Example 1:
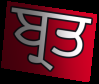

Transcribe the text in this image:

ਬ੍ਰਤ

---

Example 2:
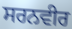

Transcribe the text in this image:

ਸਰਨਵੀਰ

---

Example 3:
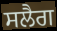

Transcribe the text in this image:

ਸਲੈਗ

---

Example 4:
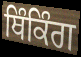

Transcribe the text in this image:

ਥਿੰਕਿੰਗ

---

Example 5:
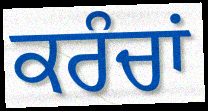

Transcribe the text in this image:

ਕਰੰਚਾਂ